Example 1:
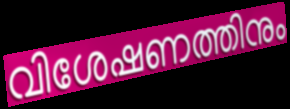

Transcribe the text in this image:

വിശേഷണത്തിനും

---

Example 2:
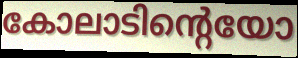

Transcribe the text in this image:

കോലാടിന്റെയോ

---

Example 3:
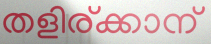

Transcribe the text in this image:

തളിര്ക്കാന്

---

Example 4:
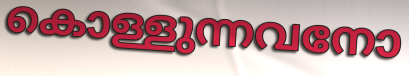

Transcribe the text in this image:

കൊള്ളുന്നവനോ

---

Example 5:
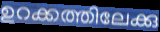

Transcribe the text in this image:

ഉറക്കത്തിലേക്കു